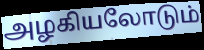
அழகியலோடும்